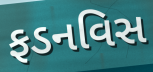
ફડનવિસ